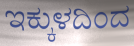
ಇಕ್ಕುಳದಿಂದ